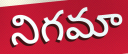
నిగమా